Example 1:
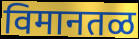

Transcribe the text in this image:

विमानतळ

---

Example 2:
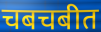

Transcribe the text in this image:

चबचबीत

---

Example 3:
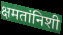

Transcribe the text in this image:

क्षमतांनिशी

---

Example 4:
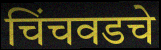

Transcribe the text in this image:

चिंचवडचे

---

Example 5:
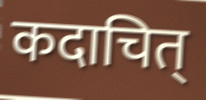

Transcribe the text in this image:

कदाचित्